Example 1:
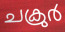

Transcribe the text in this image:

ചക്രുർ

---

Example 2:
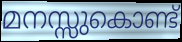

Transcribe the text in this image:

മനസ്സുകൊണ്ട്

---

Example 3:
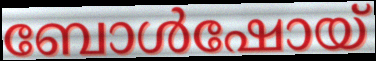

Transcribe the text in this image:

ബോൾഷോയ്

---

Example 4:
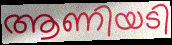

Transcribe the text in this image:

ആണിയടി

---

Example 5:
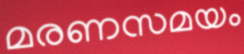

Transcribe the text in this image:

മരണസമയം